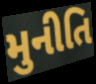
મુનીતિ